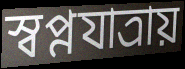
স্বপ্নযাত্রায়